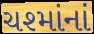
ચશ્માંનાં